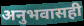
अनुभवासही